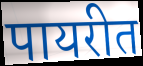
पायरीत